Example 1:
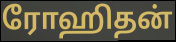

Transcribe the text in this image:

ரோஹிதன்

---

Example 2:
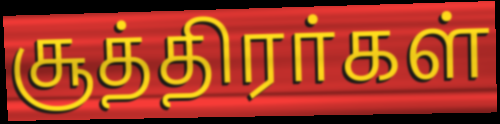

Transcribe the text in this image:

சூத்திரர்கள்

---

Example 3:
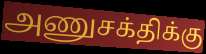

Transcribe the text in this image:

அணுசக்திக்கு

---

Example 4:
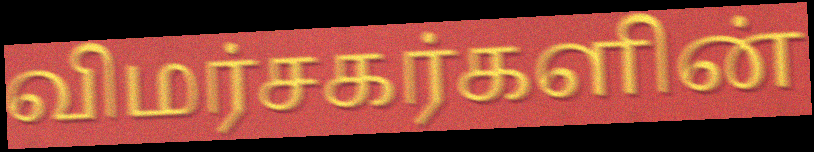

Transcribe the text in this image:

விமர்சகர்களின்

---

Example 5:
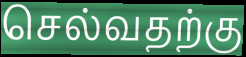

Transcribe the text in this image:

செல்வதற்கு